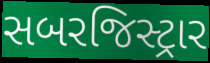
સબરજિસ્ટ્રાર